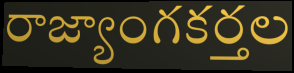
రాజ్యాంగకర్తల